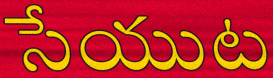
సేయుట